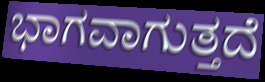
ಭಾಗವಾಗುತ್ತದೆ